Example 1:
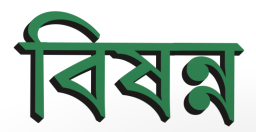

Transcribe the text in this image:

বিষন্ন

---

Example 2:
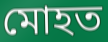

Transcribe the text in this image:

মোহত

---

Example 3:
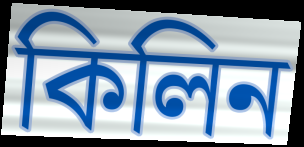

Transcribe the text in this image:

কিলিন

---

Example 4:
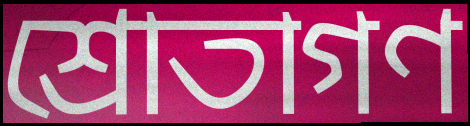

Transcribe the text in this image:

শ্রোতাগণ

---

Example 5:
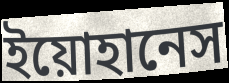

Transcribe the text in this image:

ইয়োহানেস